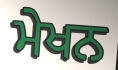
ਮੇਖਨ